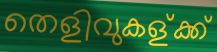
തെളിവുകള്ക്ക്